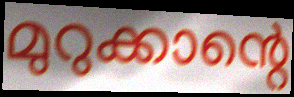
മുറുക്കാന്റെ